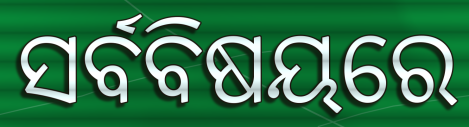
ସର୍ବବିଷୟରେ